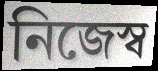
নিজেস্ব